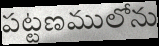
పట్టణములోను